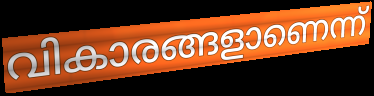
വികാരങ്ങളാണെന്ന്